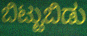
ಬಿಟ್ಟುಬಿಡು